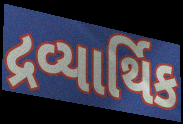
દ્રવ્યાર્થિક